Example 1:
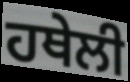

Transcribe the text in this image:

ਹਥੇਲੀ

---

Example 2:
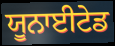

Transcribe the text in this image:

ਯੂਨਾਈਟੇਡ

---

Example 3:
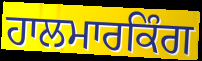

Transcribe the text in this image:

ਹਾਲਮਾਰਕਿੰਗ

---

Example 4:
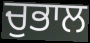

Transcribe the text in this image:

ਚੁਭਾਲ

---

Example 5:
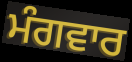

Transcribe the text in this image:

ਮੰਗਵਾਰ